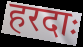
हरदाः